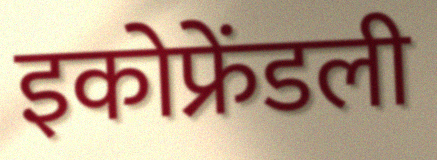
इकोफ्रेंडली